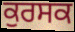
ਕੁਰਸਕ